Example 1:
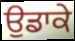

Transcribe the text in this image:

ਉਡਾਕੇ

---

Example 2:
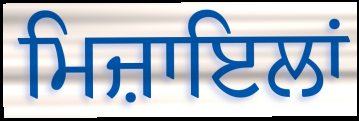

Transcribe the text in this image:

ਮਿਜ਼ਾਇਲਾਂ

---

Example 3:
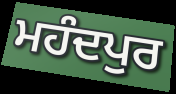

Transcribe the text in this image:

ਮਹੰਦਪੁਰ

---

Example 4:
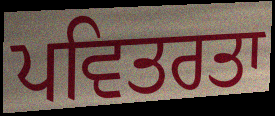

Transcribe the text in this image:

ਪਵਿਤਰਤਾ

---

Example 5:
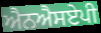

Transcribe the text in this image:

ਐਨਐਸਏਪੀ